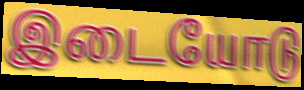
இடையோடு